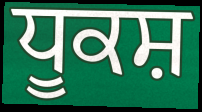
ਧੂਕਸ਼